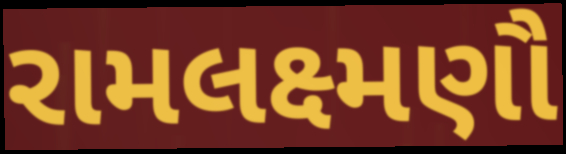
રામલક્ષ્મણૌ